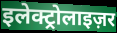
इलेक्ट्रोलाइज़र